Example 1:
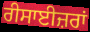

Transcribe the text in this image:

ਰੀਸਾਈਜ਼ਰਾਂ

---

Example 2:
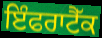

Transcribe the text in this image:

ਇੰਫਰਾਟੈੱਕ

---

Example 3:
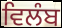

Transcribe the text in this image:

ਵਿਲੰਬ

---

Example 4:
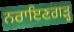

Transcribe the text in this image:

ਨਰਾਇਣਗੜ੍ਹ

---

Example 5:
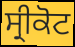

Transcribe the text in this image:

ਸ੍ਰੀਕੋਟ